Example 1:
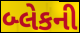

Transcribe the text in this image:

બ્લેકની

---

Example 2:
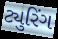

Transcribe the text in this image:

ટ્યુરિંગ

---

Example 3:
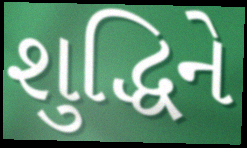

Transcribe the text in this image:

શુદ્ધિને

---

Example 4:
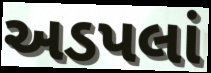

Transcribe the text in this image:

અડપલાં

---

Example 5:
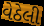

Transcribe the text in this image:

વેઠેલી